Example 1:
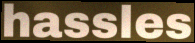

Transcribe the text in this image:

hassles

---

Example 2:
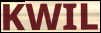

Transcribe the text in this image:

KWIL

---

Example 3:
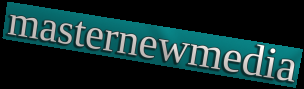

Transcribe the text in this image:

masternewmedia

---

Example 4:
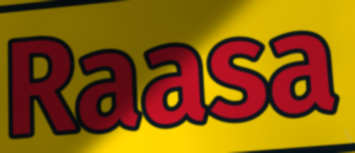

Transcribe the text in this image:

Raasa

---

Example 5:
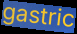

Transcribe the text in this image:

gastric